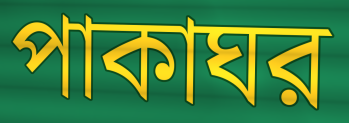
পাকাঘর